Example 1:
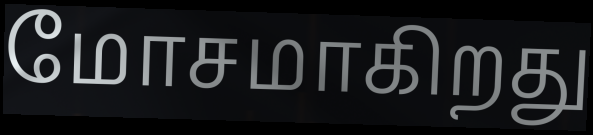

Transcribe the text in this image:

மோசமாகிறது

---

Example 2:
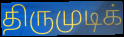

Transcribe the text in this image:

திருமுடிக்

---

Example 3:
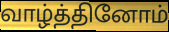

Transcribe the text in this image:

வாழ்த்தினோம்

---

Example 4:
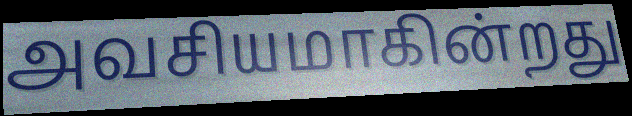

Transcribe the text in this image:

அவசியமாகின்றது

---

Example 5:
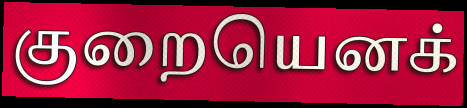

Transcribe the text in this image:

குறையெனக்